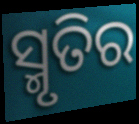
ସ୍ମୃତିର